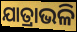
ଯାତ୍ରାଭଳି